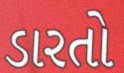
ડારતો